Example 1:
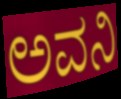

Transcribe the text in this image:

ಅವನಿ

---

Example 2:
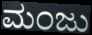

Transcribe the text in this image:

ಮಂಜು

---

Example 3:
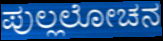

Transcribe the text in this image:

ಪುಲ್ಲಲೋಚನ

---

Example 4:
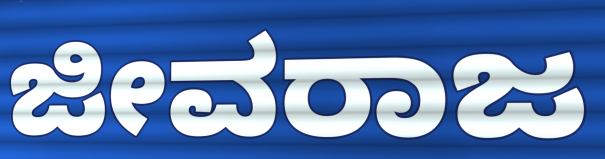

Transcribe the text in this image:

ಜೀವರಾಜ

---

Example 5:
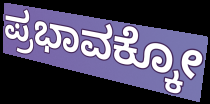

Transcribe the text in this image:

ಪ್ರಭಾವಕ್ಕೋ